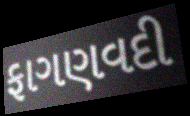
ફાગણવદી